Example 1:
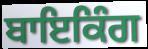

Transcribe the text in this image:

ਬਾਇਕਿੰਗ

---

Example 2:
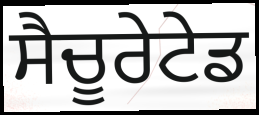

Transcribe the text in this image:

ਸੈਚੂਰੇਟੇਡ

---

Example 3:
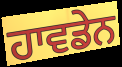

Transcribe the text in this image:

ਹਾਵਡੇਨ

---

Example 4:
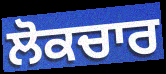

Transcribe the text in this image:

ਲੋਕਚਾਰ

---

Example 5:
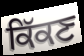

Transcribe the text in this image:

ਕਿੱਕਣ